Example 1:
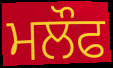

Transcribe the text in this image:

ਮਲੌਫ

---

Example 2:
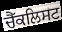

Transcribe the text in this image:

ਚੈੱਕਲਿਸਟ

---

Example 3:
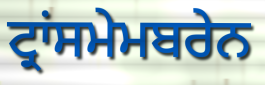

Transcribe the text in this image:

ਟ੍ਰਾਂਸਮੇਮਬਰੇਨ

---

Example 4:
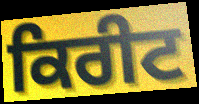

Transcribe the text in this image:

ਕਿਰੀਟ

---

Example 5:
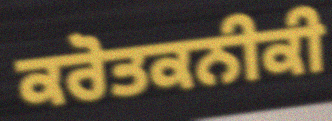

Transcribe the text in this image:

ਕਰੋਤਕਨੀਕੀ